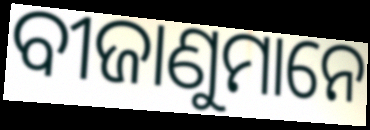
ବୀଜାଣୁମାନେ